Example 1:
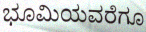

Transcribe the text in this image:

ಭೂಮಿಯವರೆಗೂ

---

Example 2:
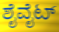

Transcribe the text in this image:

ಶೈವೈಟ್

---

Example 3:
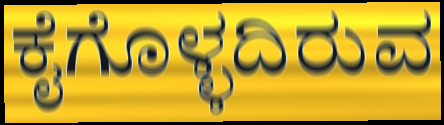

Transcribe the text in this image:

ಕೈಗೊಳ್ಳದಿರುವ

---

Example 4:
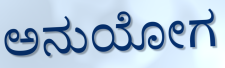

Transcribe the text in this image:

ಅನುಯೋಗ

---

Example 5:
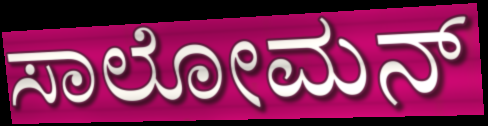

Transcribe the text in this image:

ಸಾಲೋಮನ್